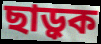
ছাড়ুক